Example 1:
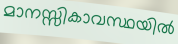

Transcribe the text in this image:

മാനസ്സികാവസ്ഥയിൽ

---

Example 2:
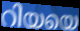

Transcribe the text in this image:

റിയയെ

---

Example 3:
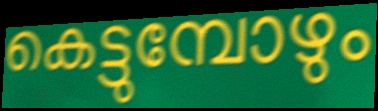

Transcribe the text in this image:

കെട്ടുമ്പോഴും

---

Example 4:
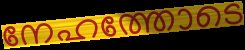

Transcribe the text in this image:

നേഹത്തോടെ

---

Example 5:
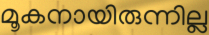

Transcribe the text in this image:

മൂകനായിരുന്നില്ല